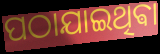
ପଠାଯାଇଥିଵା